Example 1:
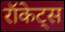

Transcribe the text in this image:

रॉकेट्स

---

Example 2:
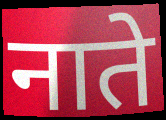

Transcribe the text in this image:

नाते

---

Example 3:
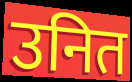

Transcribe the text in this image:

उनित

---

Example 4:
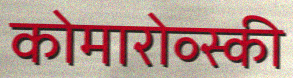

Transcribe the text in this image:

कोमारोव्स्की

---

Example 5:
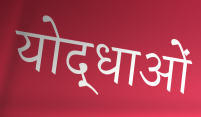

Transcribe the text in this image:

योद्धाओं